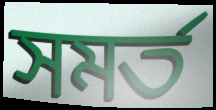
সমর্ত